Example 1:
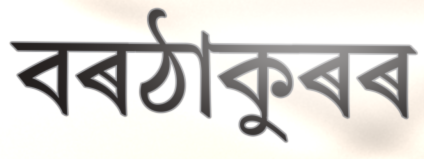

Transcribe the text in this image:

বৰঠাকুৰৰ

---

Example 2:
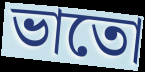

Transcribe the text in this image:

ভাতো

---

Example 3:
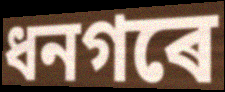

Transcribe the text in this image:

ধনগৰে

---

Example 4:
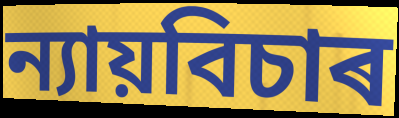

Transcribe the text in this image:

ন্যায়বিচাৰ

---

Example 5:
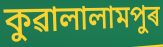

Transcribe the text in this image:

কুৱালালামপুৰ